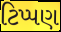
ટિપ્પણ